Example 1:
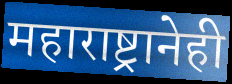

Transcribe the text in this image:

महाराष्ट्रानेही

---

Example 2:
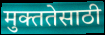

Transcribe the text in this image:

मुक्ततेसाठी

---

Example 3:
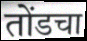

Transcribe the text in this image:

तोंडचा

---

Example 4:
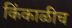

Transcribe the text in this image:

किंकाळीच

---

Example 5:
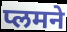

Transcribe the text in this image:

प्लमने